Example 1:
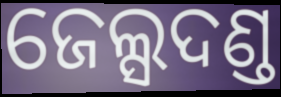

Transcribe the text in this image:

ଜେଲ୍ସଦଣ୍ଡ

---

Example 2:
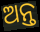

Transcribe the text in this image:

ଅନ୍ତ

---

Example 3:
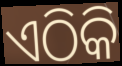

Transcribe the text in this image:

ଏଠିକି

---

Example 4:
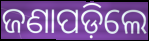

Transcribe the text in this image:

ଜଣାପଡ଼ିଲେ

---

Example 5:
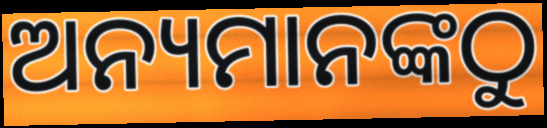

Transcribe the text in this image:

ଅନ୍ୟମାନଙ୍କଠୁ